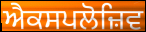
ਐਕਸਪਲੋਜ਼ਿਵ